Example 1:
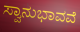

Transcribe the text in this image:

ಸ್ವಾನುಭಾವವೆ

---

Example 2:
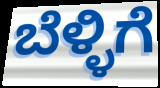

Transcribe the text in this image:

ಬೆಳ್ಳಿಗೆ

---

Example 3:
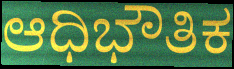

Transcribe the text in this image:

ಆಧಿಭೌತಿಕ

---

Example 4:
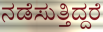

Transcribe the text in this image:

ನಡೆಸುತ್ತಿದ್ದರೆ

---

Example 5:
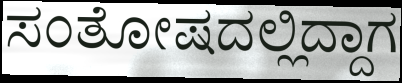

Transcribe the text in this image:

ಸಂತೋಷದಲ್ಲಿದ್ದಾಗ